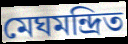
মেঘমন্দ্রিত